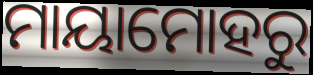
ମାୟାମୋହରୁ